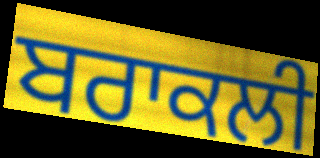
ਬਰਾਕਲੀ